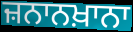
ਜ਼ਨਾਨਖ਼ਾਨਾ